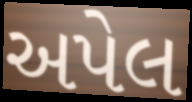
અપેલ